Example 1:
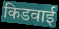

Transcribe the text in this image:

किडवाई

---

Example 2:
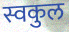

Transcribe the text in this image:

स्वकुल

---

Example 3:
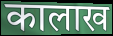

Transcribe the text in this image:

कालाख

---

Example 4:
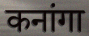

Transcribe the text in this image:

कनांगा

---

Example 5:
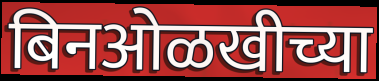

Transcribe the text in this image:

बिनओळखीच्या